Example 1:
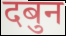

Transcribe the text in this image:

दबुन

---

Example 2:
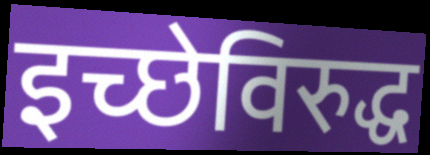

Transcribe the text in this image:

इच्छेविरुद्ध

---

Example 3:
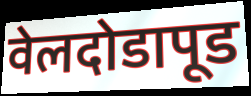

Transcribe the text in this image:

वेलदोडापूड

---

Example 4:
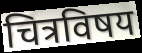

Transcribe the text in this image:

चित्रविषय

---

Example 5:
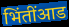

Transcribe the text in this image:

भिंतींआड